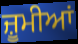
ਜ਼ੂਮੀਆਂ